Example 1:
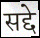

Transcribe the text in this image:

सद्दे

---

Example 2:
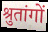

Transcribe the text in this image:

श्रुतांगों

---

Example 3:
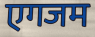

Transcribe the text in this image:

एगजम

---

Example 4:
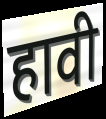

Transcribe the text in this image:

हावी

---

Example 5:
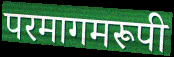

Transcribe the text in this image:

परमागमरूपी